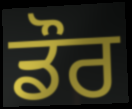
ਡੌਰ